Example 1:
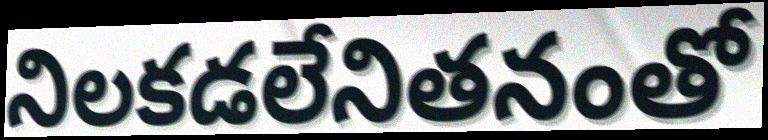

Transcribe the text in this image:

నిలకడలేనితనంతో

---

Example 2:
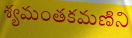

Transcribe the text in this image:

శ్యమంతకమణిని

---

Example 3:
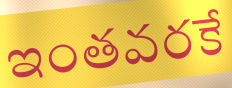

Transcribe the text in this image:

ఇంతవరకే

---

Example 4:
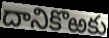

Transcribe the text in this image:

దానికొఱకు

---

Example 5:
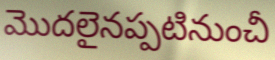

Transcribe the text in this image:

మొదలైనప్పటినుంచీ